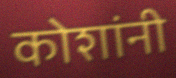
कोशांनी